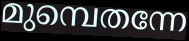
മുമ്പെതന്നേ